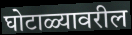
घोटाळ्यावरील